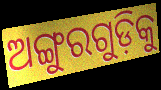
ଅଙ୍ଗୁରଗୁଡ଼ିକୁ